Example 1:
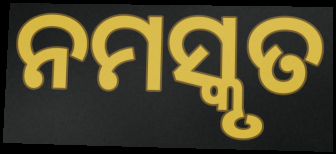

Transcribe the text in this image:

ନମସ୍କୃତ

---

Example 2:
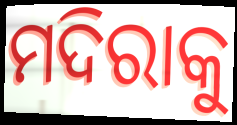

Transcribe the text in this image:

ମଦିରାକୁ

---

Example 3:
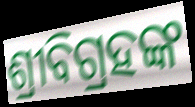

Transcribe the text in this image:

ଶ୍ରୀବିଗ୍ରହଙ୍କ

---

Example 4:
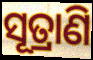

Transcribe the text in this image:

ସୂତ୍ରାଣି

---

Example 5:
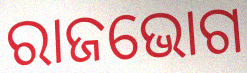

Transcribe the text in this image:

ରାଜଭୋଗ